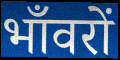
भाँवरों